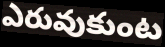
ఎరువుకుంట